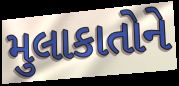
મુલાકાતોને